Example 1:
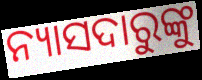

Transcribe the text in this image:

ନ୍ୟାସଦାରୁଙ୍କୁ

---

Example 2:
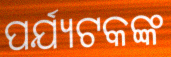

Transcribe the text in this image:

ପର୍ଯ୍ୟଟକଙ୍କ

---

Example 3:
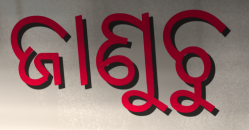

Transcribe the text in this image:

ଜାଣୁଚୁ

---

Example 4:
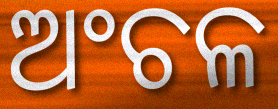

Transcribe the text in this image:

ଅଂଚଳ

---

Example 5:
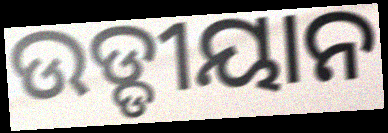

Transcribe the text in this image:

ଉଡ୍ଡୀୟାନ